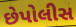
છેપોલીસ